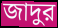
জাদুর